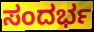
ಸಂದರ್ಭ